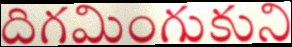
దిగమింగుకుని